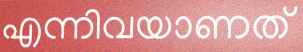
എന്നിവയാണത്